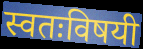
स्वतःविषयी